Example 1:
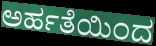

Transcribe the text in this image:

ಅರ್ಹತೆಯಿಂದ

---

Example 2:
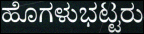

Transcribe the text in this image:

ಹೊಗಳುಭಟ್ಟರು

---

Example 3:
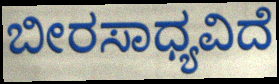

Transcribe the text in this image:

ಬೀರಸಾಧ್ಯವಿದೆ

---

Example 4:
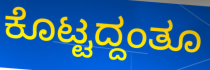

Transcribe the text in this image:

ಕೊಟ್ಟದ್ದಂತೂ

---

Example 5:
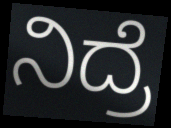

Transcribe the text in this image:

ನಿದ್ರೆ